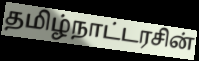
தமிழ்நாட்டரசின்